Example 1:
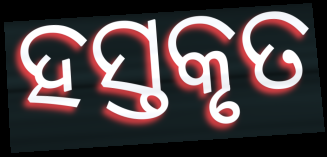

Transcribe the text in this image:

ହସ୍ତକୃତ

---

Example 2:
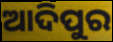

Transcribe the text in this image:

ଆଦିପୁର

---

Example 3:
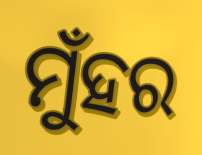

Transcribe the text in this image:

ମୁଁହର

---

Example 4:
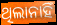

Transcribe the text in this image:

ଥିଲାନାହିଁ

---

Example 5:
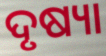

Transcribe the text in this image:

ଦୃଷ୍ୟା